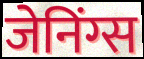
जेनिंग्स